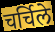
चर्चिले